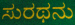
ಸುರಥನು